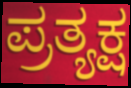
ಪ್ರತ್ಯಕ್ಷ